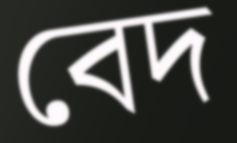
বেদ